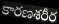
కారణశరీర